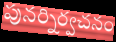
పునర్నిర్వచనం